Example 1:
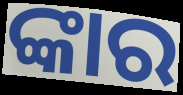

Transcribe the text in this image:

ଙ୍କାର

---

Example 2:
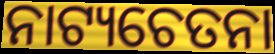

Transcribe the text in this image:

ନାଟ୍ୟଚେତନା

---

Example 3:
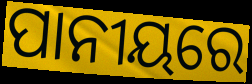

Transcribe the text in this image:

ପାନୀୟରେ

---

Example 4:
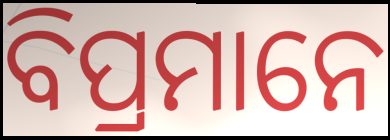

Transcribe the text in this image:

ବିପ୍ରମାନେ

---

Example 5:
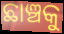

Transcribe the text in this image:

ଛାଞ୍ଚକୁ